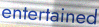
entertained